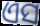
ଏସ